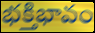
భక్తిభావం